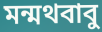
মন্মথবাবু